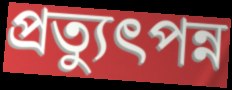
প্রত্যুৎপন্ন